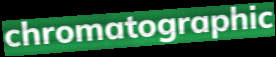
chromatographic